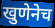
खुणेनेच